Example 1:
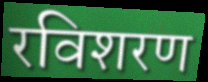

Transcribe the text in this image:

रविशरण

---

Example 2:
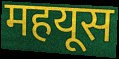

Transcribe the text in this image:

महयूस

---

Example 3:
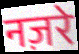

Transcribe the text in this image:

नज़रे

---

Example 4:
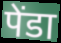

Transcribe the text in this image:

पेंडा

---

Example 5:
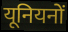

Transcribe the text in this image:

यूनियनों